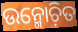
ଉନ୍ମୋଚ଼ିତ